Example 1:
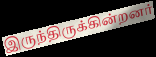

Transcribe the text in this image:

இருந்திருக்கின்றனர்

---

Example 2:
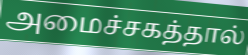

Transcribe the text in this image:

அமைச்சகத்தால்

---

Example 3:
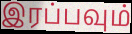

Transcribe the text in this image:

இரப்பவும்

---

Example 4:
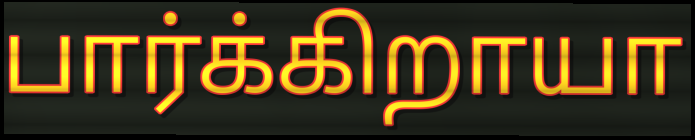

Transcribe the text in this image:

பார்க்கிறாயா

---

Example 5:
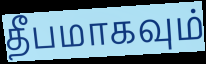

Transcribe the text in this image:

தீபமாகவும்